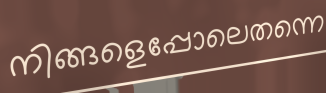
നിങ്ങളെപ്പോലെതന്നെ